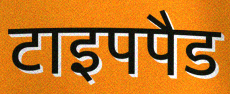
टाइपपैड